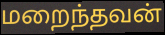
மறைந்தவன்